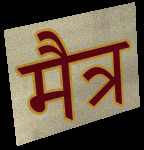
मैत्र